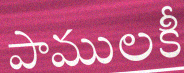
పాములకీ